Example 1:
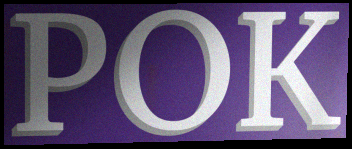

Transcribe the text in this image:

POK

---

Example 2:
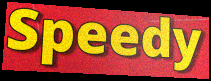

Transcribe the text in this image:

Speedy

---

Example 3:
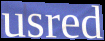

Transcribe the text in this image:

usred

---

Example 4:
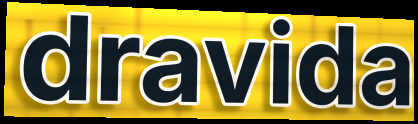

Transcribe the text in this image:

dravida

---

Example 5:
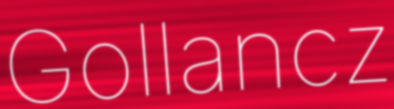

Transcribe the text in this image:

Gollancz